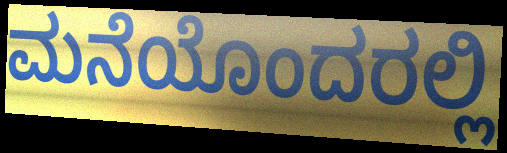
ಮನೆಯೊಂದರಲ್ಲಿ